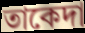
তাকেদা